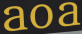
aoa